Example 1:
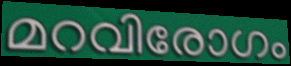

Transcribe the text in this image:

മറവിരോഗം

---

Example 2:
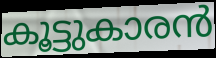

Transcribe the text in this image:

കൂട്ടുകാരൻ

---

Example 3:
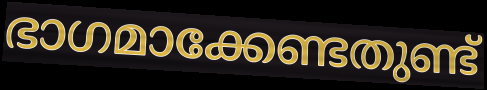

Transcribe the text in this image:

ഭാഗമാക്കേണ്ടതുണ്ട്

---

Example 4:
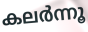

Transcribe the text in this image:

കലർന്നൂ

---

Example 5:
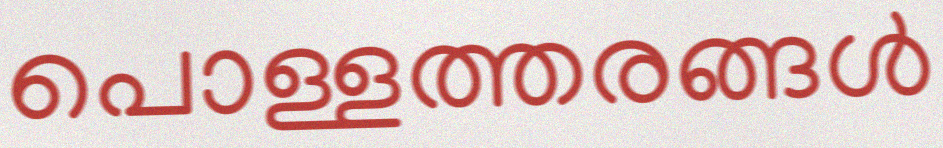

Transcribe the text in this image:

പൊള്ളത്തരങ്ങൾ